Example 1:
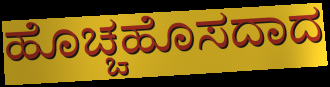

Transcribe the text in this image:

ಹೊಚ್ಚಹೊಸದಾದ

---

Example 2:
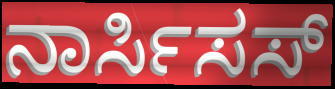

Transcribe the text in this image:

ನಾರ್ಸಿಸಸ್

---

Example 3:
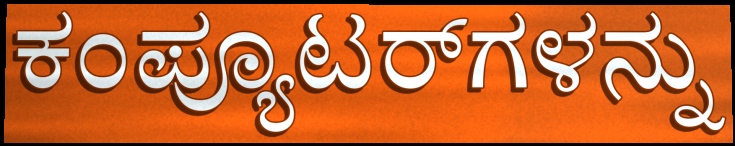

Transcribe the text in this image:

ಕಂಪ್ಯೂಟರ್‌ಗಳನ್ನು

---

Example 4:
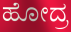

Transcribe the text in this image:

ಹೋದ್ರ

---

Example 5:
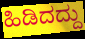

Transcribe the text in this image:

ಹಿಡಿದದ್ದು